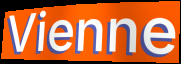
Vienne